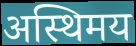
अस्थिमय